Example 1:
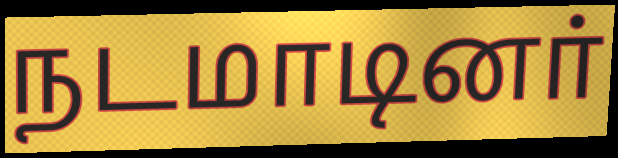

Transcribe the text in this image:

நடமாடினர்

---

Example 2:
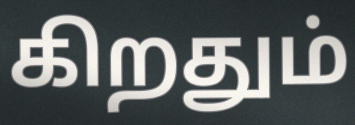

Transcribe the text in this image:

கிறதும்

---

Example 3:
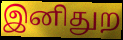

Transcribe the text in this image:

இனிதுற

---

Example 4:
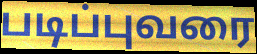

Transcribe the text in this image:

படிப்புவரை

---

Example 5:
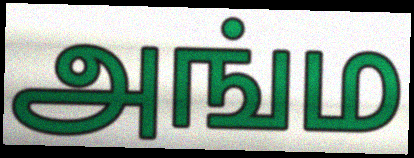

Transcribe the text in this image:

அங்ம